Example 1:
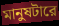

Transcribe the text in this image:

মানুষটারে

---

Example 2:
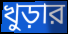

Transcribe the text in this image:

খুড়ার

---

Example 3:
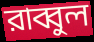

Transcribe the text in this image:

রাব্বুল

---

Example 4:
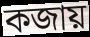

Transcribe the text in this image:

কজায়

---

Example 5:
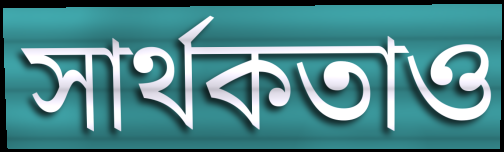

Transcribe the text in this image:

সার্থকতাও